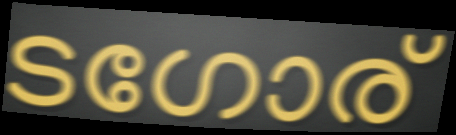
ടഗോര്